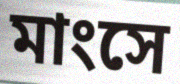
মাংসে